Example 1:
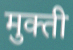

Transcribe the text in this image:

मुक्ती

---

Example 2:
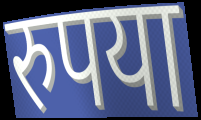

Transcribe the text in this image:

रुपया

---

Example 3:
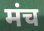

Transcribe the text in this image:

मंच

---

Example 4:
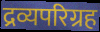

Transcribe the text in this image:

द्रव्यपरिग्रह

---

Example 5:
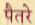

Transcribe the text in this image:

पैतरे